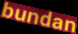
bundan